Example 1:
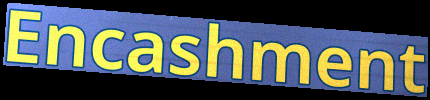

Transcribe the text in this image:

Encashment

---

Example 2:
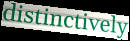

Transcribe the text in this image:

distinctively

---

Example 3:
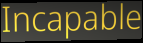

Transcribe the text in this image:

Incapable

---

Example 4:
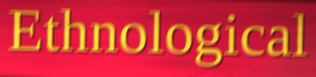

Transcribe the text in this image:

Ethnological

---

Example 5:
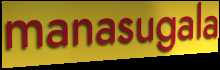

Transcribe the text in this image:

manasugala